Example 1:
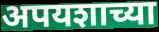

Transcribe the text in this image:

अपयशाच्या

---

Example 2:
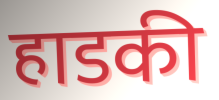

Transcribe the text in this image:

हाडकी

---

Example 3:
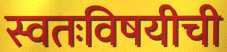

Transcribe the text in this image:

स्वतःविषयीची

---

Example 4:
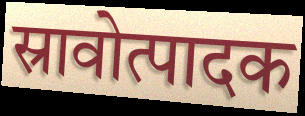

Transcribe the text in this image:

स्रावोत्पादक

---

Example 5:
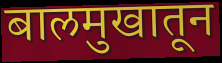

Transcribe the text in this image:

बालमुखातून